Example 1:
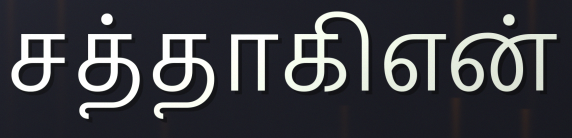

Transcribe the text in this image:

சத்தாகிஎன்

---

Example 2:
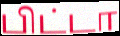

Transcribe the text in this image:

பிட்டா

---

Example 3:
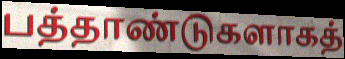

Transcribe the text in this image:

பத்தாண்டுகளாகத்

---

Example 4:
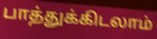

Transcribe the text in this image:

பாத்துக்கிடலாம்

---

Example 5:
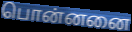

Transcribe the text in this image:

பொன்னனை